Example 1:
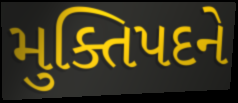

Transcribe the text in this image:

મુક્તિપદને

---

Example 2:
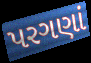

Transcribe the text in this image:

પરગણાં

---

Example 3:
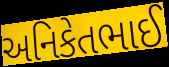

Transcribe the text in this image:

અનિકેતભાઈ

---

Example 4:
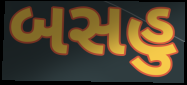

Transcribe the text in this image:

બસહુ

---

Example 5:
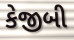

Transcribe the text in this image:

કેજીબી